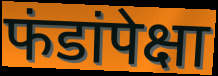
फंडांपेक्षा